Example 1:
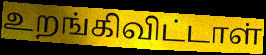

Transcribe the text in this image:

உறங்கிவிட்டாள்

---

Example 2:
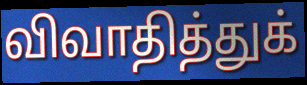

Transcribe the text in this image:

விவாதித்துக்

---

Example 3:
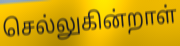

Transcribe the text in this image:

செல்லுகின்றாள்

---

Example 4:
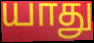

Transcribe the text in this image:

யாது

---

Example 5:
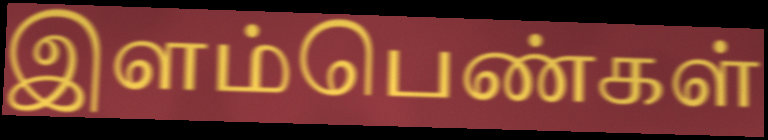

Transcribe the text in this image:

இளம்பெண்கள்